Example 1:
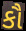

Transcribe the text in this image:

કૌ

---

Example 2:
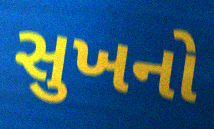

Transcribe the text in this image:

સુખનો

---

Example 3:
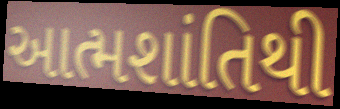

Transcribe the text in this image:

આત્મશાંતિથી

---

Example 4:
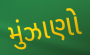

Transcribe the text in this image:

મુંઝાણો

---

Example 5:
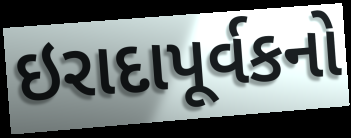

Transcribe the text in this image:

ઇરાદાપૂર્વકનો